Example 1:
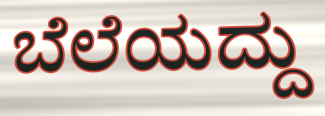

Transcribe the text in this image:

ಬೆಲೆಯದ್ದು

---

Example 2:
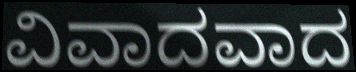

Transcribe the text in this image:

ವಿವಾದವಾದ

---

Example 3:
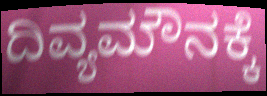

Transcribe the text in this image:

ದಿವ್ಯಮೌನಕ್ಕೆ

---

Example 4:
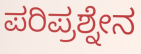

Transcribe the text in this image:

ಪರಿಪ್ರಶ್ನೇನ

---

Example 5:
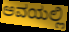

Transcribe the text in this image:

ಅವಯಲ್ಲಿ